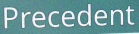
Precedent